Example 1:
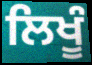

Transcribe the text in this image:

ਲਿਖੂੰ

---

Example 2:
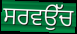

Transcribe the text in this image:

ਸਰਵਉੱਚ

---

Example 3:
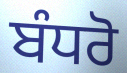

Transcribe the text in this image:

ਬੰਧਰੋ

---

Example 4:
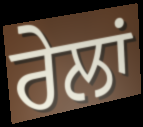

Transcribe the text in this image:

ਰੇਲਾਂ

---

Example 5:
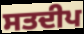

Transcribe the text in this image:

ਸਤਦੀਪ